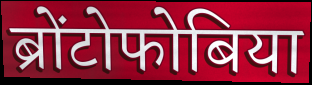
ब्रोंटोफोबिया